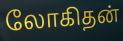
லோகிதன்